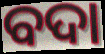
ବଦା